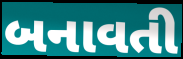
બનાવતી